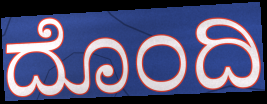
ದೊಂದಿ